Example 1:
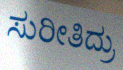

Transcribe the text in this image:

ಸುರೀತಿದ್ರು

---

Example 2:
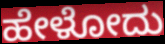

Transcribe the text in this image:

ಹೇಳೋದು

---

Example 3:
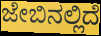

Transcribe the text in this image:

ಜೇಬಿನಲ್ಲಿದೆ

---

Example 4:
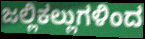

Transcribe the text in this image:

ಜಲ್ಲಿಕಲ್ಲುಗಳಿಂದ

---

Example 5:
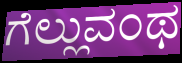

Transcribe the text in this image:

ಗೆಲ್ಲುವಂಥ